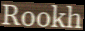
Rookh